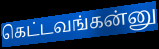
கெட்டவங்கன்னு